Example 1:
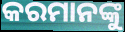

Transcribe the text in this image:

କରମାନଙ୍କୁ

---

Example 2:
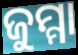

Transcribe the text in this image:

ଜୁମ୍ମା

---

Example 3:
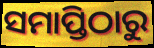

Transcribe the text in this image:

ସମାପ୍ତିଠାରୁ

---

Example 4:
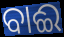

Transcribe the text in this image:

ବାଈ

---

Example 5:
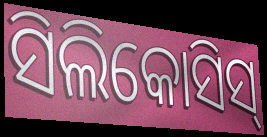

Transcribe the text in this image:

ସିଲିକୋସିସ୍